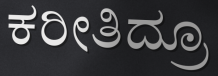
ಕರೀತಿದ್ರೂ